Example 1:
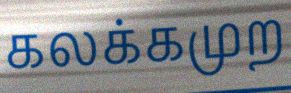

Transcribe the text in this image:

கலக்கமுற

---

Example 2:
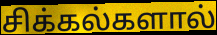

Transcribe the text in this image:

சிக்கல்களால்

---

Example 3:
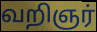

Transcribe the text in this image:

வறிஞர்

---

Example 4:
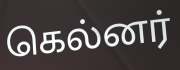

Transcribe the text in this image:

கெல்னர்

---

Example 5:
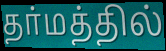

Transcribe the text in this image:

தர்மத்தில்